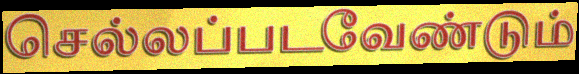
செல்லப்படவேண்டும்